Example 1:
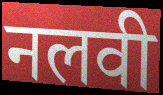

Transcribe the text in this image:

नलवी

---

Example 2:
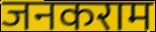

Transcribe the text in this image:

जनकराम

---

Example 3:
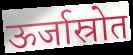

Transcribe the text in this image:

ऊर्जास्रोत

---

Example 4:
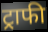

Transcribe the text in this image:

ट्राफी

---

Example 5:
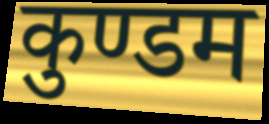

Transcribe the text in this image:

कुण्डम